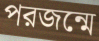
পরজন্মে